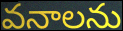
వనాలను